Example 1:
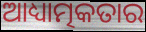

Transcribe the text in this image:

ଆଧ୍ୟାତ୍ମକତାର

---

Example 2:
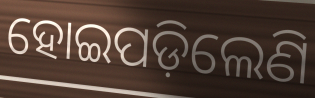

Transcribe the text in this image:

ହୋଇପଡ଼ିଲେଣି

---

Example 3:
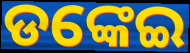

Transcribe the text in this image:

ଡଙ୍କେଇ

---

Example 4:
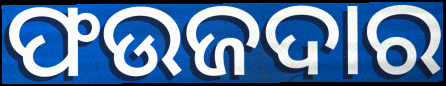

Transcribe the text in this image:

ଫଉଜଦାର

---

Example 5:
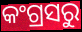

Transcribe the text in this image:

କଂଗ୍ରସରୁ